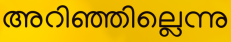
അറിഞ്ഞില്ലെന്നു